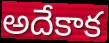
అదేకాక